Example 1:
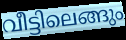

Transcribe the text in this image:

വീട്ടിലെങ്ങും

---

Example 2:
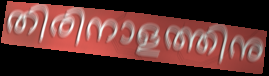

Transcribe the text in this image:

തിരിനാളത്തിനു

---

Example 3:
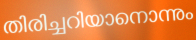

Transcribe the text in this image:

തിരിച്ചറിയാനൊന്നും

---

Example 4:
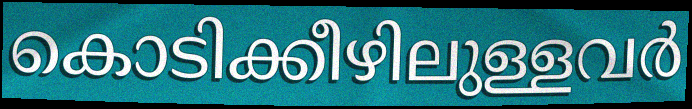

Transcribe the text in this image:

കൊടിക്കീഴിലുള്ളവർ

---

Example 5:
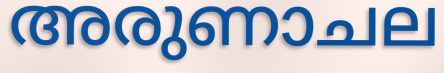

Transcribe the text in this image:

അരുണാചല